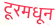
टूरमधून